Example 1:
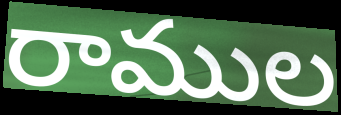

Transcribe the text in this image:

రాముల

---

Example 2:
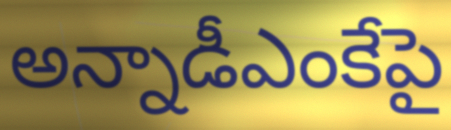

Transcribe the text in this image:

అన్నాడీఎంకేపై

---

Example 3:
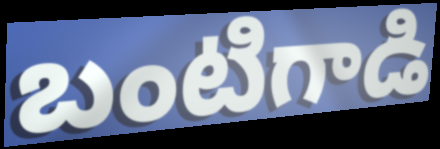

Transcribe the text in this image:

బంటిగాడి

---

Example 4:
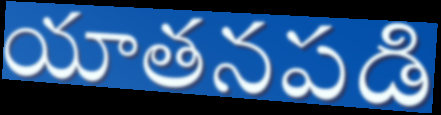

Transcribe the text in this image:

యాతనపడి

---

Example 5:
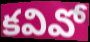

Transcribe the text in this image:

కవివో